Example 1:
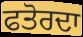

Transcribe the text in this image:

ਫਤੋਰਦਾ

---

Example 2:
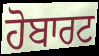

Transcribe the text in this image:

ਹੋਬਾਰਟ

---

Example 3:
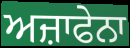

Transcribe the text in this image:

ਅਜ਼ਾਫੇਨਾ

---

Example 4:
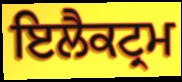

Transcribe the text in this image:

ਇਲੈਕਟ੍ਰਮ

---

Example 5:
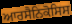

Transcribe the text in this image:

ਆਰਸੈਨਿਕੋਸਿਸ